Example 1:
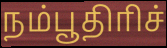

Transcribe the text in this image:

நம்பூதிரிச்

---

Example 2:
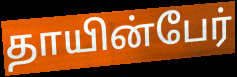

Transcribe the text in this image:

தாயின்பேர்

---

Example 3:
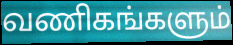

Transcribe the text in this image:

வணிகங்களும்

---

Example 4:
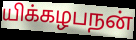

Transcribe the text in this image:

யிக்கழபநன்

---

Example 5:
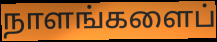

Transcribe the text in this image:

நாளங்களைப்